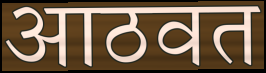
आठवत